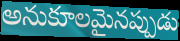
అనుకూలమైనప్పుడు